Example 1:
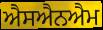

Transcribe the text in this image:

ਐਸਐਨਐਮ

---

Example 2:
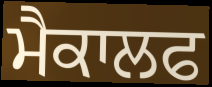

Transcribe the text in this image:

ਮੈਕਾਲਫ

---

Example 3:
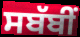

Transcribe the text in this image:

ਸਬੱਬੀਂ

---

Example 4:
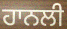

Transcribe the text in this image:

ਹਾਨਲੀ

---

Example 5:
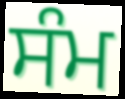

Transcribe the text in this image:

ਸੰਮ